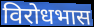
विरोधभास